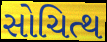
સોચિત્થ